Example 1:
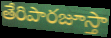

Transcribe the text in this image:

తేరిపారజూస్తా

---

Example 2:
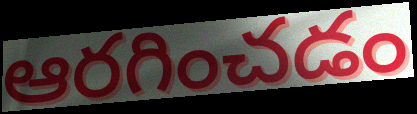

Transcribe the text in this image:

ఆరగించడం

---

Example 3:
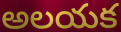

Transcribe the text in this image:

అలయక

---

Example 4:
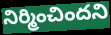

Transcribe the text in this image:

నిర్మించిందని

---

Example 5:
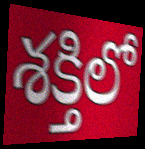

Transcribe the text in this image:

శక్తిలో